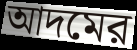
আদমের